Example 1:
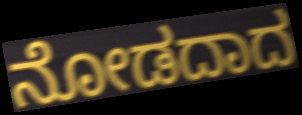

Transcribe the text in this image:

ನೋಡದಾದ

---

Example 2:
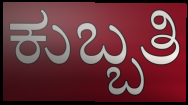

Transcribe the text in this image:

ಕುಬ್ಬತಿ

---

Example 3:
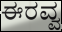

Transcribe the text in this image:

ಈರವ್ವ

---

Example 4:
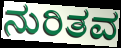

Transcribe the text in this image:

ನುರಿತವ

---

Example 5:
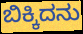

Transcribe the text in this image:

ಬಿಕ್ಕಿದನು